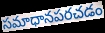
సమాధానపరచడం